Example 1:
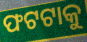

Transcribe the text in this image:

ଫଟଟାକୁ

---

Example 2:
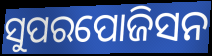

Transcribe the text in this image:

ସୁପରପୋଜିସନ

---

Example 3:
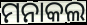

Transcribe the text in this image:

ମନାକଲ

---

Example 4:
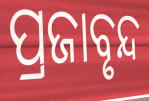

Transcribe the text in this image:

ପ୍ରଜାବୃନ୍ଦ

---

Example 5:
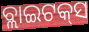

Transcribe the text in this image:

ବ୍ଲାଇଟକ୍‌ସ